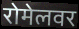
रोमेलवर